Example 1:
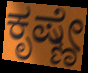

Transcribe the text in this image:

ಕೃಷ್ಣೇ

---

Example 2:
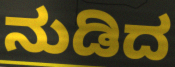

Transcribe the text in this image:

ನುಡಿದ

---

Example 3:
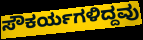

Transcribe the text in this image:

ಸೌಕರ್ಯಗಳಿದ್ದವು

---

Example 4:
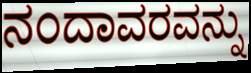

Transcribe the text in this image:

ನಂದಾವರವನ್ನು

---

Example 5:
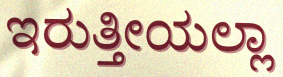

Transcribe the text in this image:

ಇರುತ್ತೀಯಲ್ಲಾ